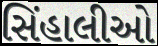
સિંહાલીઓ